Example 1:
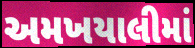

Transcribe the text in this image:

અમખયાલીમાં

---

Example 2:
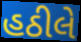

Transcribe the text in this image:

હઠીલે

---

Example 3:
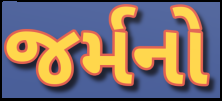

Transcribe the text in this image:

જર્મનો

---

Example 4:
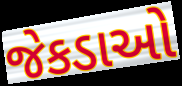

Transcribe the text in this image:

જેકડાઓ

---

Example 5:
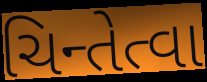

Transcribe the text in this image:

ચિન્તેત્વા